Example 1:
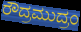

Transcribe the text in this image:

ರೌದ್ರಮುದ್ರಂ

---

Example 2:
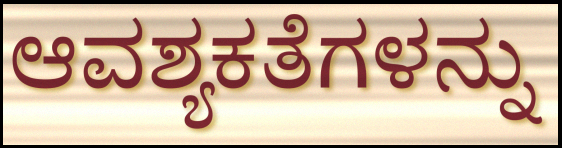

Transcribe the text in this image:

ಆವಶ್ಯಕತೆಗಳನ್ನು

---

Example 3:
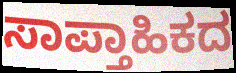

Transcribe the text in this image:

ಸಾಪ್ತಾಹಿಕದ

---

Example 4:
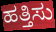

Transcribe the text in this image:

ಹತ್ತಿಸು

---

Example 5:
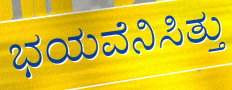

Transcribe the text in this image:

ಭಯವೆನಿಸಿತ್ತು